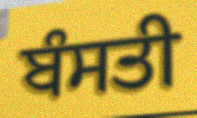
ਬੰਸਤੀ